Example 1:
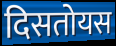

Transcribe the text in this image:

दिसतोयस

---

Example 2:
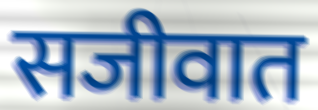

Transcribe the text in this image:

सजीवात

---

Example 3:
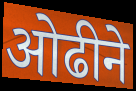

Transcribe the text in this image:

ओढीने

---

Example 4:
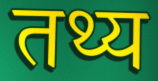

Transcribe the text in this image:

तथ्य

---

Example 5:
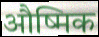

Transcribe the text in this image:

औष्मिक